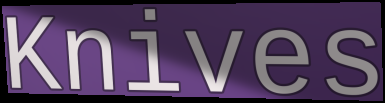
Knives